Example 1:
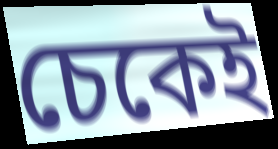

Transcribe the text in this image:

চেকেই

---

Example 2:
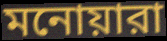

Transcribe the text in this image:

মনোয়ারা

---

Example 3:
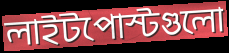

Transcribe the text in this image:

লাইটপোস্টগুলো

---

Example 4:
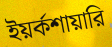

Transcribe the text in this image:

ইয়র্কশায়ারি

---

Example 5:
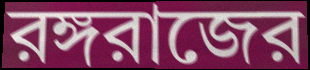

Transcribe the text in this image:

রঙ্গরাজের